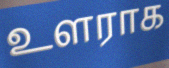
உளராக